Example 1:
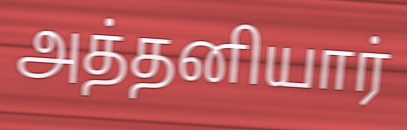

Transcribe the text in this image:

அத்தனியார்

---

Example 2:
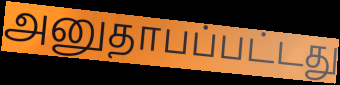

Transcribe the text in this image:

அனுதாபப்பட்டது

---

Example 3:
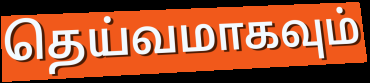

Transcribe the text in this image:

தெய்வமாகவும்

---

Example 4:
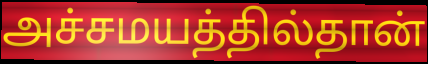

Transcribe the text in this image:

அச்சமயத்தில்தான்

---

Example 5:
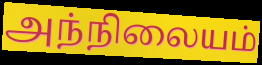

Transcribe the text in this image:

அந்நிலையம்